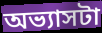
অভ্যাসটা